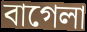
বাগেলা